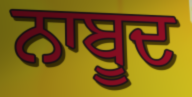
ਨਾਬੂਦ